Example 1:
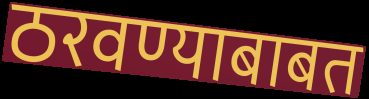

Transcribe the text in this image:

ठरवण्याबाबत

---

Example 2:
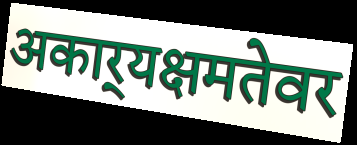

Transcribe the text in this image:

अकार्यक्षमतेवर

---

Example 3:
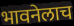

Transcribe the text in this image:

भावनेलाच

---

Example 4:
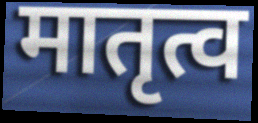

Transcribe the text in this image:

मातृत्व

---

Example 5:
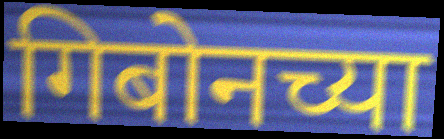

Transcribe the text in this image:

गिबोनच्या